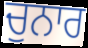
ਚੁਨਾਰ